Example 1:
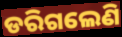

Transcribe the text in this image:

ଡରିଗଲେଣି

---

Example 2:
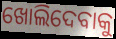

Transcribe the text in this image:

ଖୋଲିଦେବାକୁ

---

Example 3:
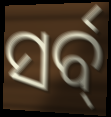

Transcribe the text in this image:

ସର୍ବ୍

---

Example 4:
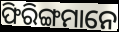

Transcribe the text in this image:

ଫିରିଙ୍ଗମାନେ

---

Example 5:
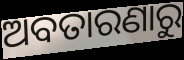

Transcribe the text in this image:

ଅବତାରଣାରୁ